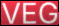
VEG